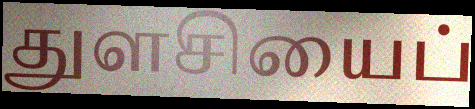
துளசியைப்